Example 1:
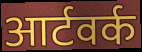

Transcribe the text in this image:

आर्टवर्क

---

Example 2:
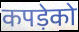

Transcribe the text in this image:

कपड़ेको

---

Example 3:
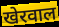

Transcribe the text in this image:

खेरवाल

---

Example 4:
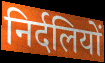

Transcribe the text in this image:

निर्दलियों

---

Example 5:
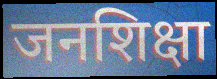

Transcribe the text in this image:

जनशिक्षा